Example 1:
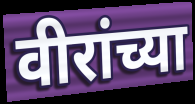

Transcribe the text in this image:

वीरांच्या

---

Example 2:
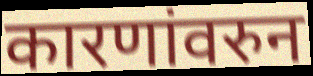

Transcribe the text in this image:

कारणांवरुन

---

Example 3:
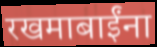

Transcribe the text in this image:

रखमाबाईंना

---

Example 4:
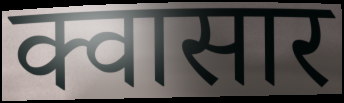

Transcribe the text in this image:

क्वासार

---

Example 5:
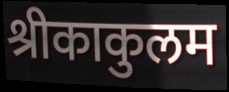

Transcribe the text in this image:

श्रीकाकुलम